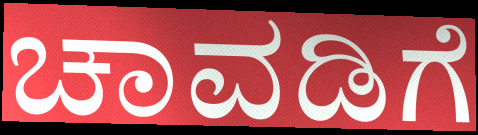
ಚಾವಡಿಗೆ